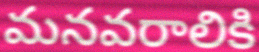
మనవరాలికి